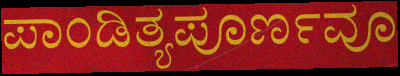
ಪಾಂಡಿತ್ಯಪೂರ್ಣವೂ